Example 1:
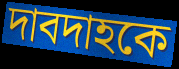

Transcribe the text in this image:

দাবদাহকে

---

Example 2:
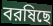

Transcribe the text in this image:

বরষিছে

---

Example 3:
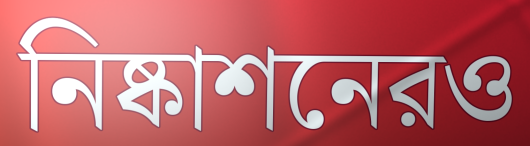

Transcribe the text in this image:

নিষ্কাশনেরও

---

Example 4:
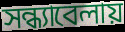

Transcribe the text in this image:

সন্ধ্যাবেলায়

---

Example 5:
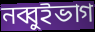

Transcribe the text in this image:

নব্বুইভাগ